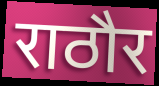
राठौर